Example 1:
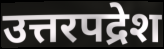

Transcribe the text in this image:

उत्तरपद्रेश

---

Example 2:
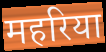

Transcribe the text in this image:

महरिया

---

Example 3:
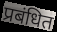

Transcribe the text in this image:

प्रबंधित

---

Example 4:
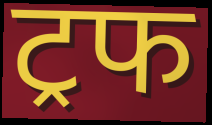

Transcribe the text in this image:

ट्रफ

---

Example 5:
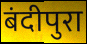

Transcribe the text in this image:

बंदीपुरा